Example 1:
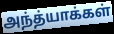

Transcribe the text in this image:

அந்த்யாக்கள்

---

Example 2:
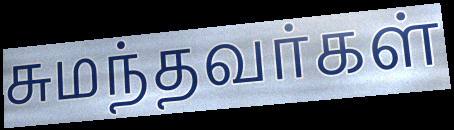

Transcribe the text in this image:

சுமந்தவர்கள்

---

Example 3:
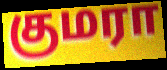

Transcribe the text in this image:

குமரா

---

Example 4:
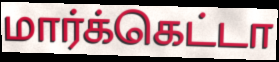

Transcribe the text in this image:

மார்க்கெட்டா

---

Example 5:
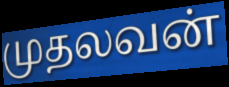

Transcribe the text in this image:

முதலவன்